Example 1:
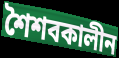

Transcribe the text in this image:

শৈশবকালীন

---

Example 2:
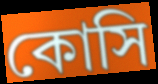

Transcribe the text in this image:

কোসি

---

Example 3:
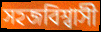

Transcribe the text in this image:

সহজবিশ্বাসী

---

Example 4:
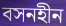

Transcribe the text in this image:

বসনহীন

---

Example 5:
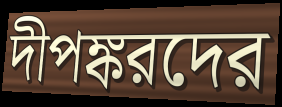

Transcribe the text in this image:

দীপঙ্করদের